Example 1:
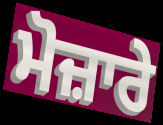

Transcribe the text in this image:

ਮੋਜ਼ਾਰੇ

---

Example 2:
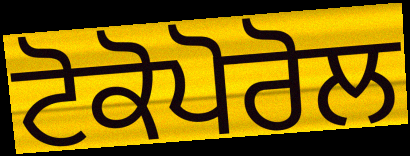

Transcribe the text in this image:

ਟੋਕੋਪੋਰੋਲ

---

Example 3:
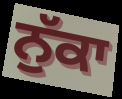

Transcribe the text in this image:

ਨੁੱਕਾ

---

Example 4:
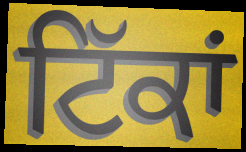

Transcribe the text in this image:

ਟਿੱਕਾਂ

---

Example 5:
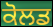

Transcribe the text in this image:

ਕੋਲਡ